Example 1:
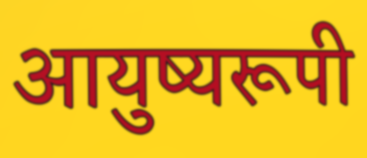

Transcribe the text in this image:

आयुष्यरूपी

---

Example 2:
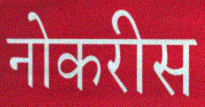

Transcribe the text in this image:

नोकरीस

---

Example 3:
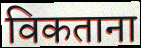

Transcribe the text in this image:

विकताना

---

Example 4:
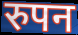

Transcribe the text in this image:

रुपन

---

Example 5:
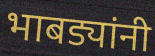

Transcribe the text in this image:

भाबड्यांनी